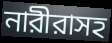
নারীরাসহ